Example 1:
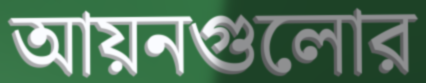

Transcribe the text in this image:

আয়নগুলোর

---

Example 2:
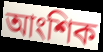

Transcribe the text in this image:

আংশিক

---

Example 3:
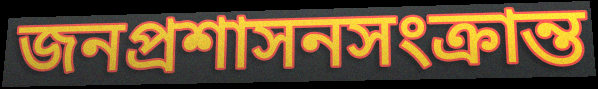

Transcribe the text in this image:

জনপ্রশাসনসংক্রান্ত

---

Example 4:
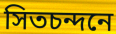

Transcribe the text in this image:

সিতচন্দনে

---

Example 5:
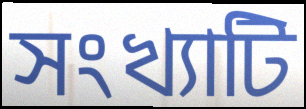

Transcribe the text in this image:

সংখ্যাটি